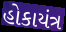
હોકાયંત્ર